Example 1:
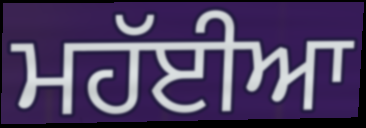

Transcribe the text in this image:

ਮਹੱਈਆ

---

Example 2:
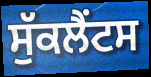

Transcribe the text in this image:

ਸੁੱਕਲੈਂਟਸ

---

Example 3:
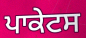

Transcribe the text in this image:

ਪਾਕੇਟਸ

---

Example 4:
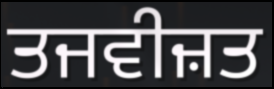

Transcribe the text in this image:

ਤਜਵੀਜ਼ਤ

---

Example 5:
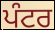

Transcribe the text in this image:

ਪੰਟਰ